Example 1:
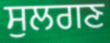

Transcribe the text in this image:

ਸੁਲਗਣ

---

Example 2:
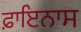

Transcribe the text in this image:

ਫ਼ਾਇਨਾਸ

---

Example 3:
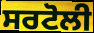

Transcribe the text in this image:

ਸਰਟੋਲੀ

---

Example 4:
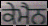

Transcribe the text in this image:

ਕੇਮੈਨ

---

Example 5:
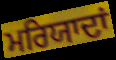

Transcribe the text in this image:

ਮਰਿਯਾਦਾਂ